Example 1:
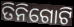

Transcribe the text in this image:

ତିନିଗୋଟି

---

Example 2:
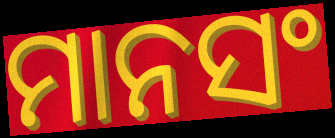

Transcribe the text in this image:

ମାନସଂ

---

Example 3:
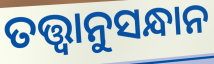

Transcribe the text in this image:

ତତ୍ତ୍ବାନୁସନ୍ଧାନ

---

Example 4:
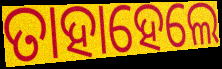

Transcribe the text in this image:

ତାହାହେଲେ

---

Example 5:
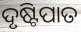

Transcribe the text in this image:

ଦୃଷ୍ଟିପାତ